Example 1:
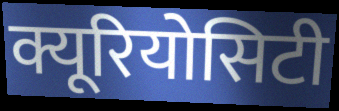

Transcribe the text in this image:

क्यूरियोसिटी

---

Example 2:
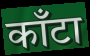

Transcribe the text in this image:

काँटा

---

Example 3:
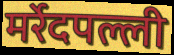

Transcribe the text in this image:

मर्रेदपल्ली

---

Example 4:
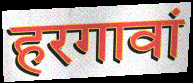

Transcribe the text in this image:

हरगावां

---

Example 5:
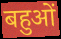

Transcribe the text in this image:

बहुओं